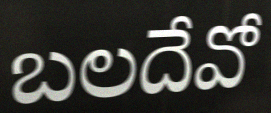
బలదేవో